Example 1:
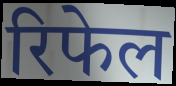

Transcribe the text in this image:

रिफेल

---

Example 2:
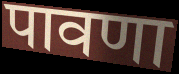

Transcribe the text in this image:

पावणा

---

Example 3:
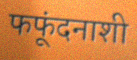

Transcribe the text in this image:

फफूंदनाशी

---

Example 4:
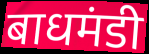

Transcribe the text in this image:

बाधमंडी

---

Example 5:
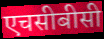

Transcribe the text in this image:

एचसीबीसी